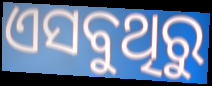
ଏସବୁଥିରୁ